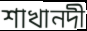
শাখানদী